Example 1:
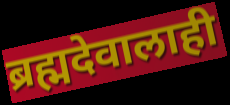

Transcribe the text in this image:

ब्रह्मदेवालाही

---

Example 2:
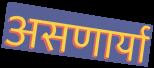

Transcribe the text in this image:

असणार्या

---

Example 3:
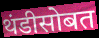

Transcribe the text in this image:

थंडीसोबत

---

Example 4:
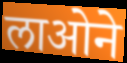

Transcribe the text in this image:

लाओने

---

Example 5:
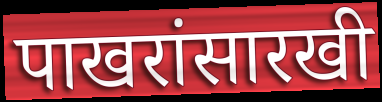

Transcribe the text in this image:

पाखरांसारखी